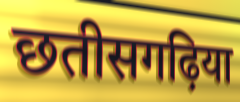
छतीसगढ़िया